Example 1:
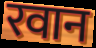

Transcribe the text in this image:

रवान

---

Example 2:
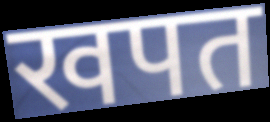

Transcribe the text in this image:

खपत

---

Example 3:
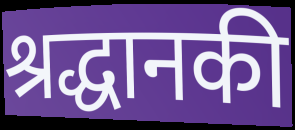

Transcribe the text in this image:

श्रद्धानकी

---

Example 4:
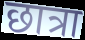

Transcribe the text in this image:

छात्रा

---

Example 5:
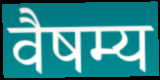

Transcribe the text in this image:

वैषम्य